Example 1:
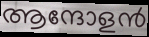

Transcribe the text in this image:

ആന്ദോളൻ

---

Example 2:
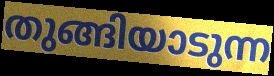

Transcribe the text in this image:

തുങ്ങിയാടുന്ന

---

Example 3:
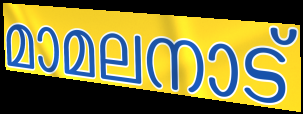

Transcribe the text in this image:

മാമലനാട്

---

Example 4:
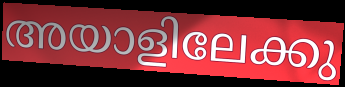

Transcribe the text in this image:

അയാളിലേക്കു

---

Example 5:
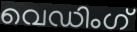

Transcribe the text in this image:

വെഡിംഗ്